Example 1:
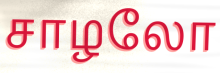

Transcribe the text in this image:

சாழலோ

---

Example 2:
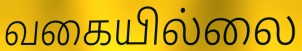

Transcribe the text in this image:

வகையில்லை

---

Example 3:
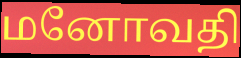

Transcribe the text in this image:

மனோவதி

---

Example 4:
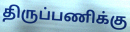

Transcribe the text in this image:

திருப்பணிக்கு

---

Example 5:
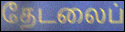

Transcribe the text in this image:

தேடலைப்